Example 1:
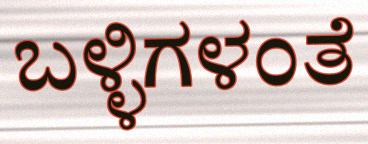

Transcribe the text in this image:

ಬಳ್ಳಿಗಳಂತೆ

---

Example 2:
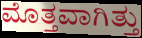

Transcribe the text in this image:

ಮೊತ್ತವಾಗಿತ್ತು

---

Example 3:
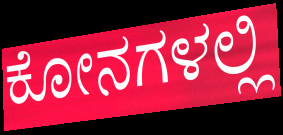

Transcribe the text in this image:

ಕೋನಗಳಲ್ಲಿ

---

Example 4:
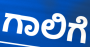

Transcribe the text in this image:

ಗಾಲಿಗೆ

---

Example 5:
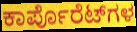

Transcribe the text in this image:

ಕಾರ್ಪೊರೆಟ್‌ಗಳ